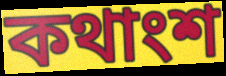
কথাংশ